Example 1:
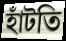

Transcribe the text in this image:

হাঁটতি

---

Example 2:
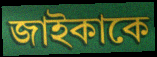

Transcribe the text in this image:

জাইকাকে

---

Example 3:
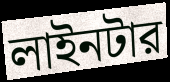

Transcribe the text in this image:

লাইনটার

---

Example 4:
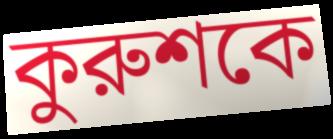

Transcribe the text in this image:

কুরুশকে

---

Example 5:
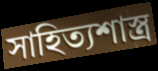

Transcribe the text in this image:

সাহিত্যশাস্ত্র